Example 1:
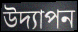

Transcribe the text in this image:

উদ্যাপন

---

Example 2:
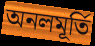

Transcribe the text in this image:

অনলমূর্তি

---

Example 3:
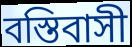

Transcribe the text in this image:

বস্তিবাসী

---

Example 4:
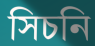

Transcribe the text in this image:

সিচনি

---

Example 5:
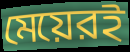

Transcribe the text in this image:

মেয়েরই